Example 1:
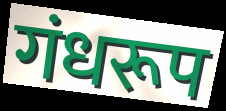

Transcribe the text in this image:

गंधरूप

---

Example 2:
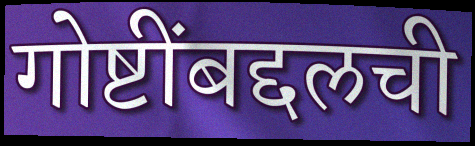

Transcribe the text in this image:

गोष्टींबद्दलची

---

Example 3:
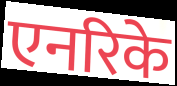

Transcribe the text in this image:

एनरिके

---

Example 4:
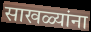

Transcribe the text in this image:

साखळ्यांना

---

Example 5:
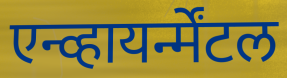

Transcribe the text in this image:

एन्व्हायर्न्मेंटल